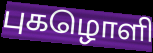
புகழொளி